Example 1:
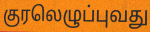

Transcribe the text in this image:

குரலெழுப்புவது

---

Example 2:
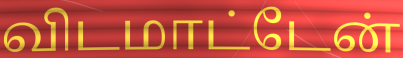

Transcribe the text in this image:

விடமாட்டேன்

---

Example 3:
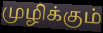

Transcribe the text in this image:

முழிக்கும்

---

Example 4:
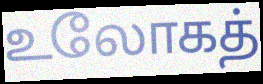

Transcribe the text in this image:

உலோகத்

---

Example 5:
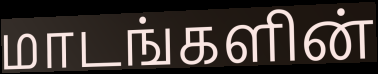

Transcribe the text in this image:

மாடங்களின்